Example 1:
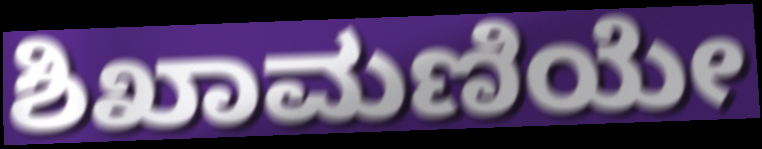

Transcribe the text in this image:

ಶಿಖಾಮಣಿಯೇ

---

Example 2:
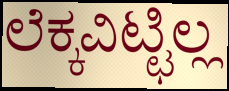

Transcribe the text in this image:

ಲೆಕ್ಕವಿಟ್ಟಿಲ್ಲ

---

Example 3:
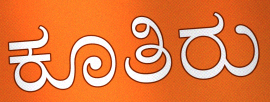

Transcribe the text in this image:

ಕೂತಿರು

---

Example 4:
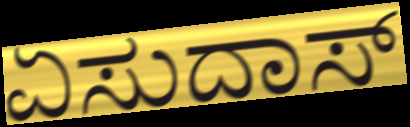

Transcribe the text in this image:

ಏಸುದಾಸ್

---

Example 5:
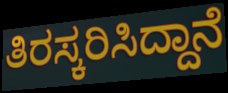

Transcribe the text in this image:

ತಿರಸ್ಕರಿಸಿದ್ದಾನೆ